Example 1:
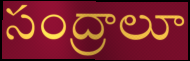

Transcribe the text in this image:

సంద్రాలూ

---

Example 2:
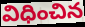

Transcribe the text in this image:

విధించిన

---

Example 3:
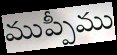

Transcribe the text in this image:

ముప్పీము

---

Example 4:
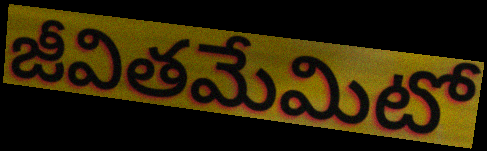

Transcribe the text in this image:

జీవితమేమిటో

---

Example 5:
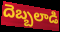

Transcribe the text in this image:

దెబ్బలాడి